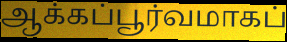
ஆக்கப்பூர்வமாகப்